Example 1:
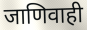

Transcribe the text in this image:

जाणिवाही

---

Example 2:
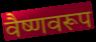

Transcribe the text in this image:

वैष्णवरूप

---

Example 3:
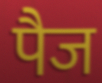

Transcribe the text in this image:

पैज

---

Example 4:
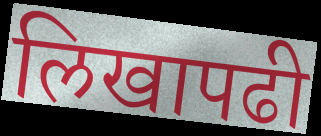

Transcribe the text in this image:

लिखापढी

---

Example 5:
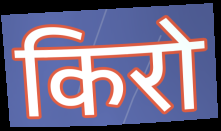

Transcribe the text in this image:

किरो